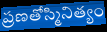
ప్రణతోస్మినిత్యం